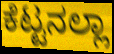
ಕೆಟ್ಟನಲ್ಲಾ